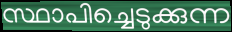
സ്ഥാപിച്ചെടുക്കുന്ന